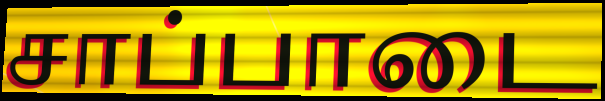
சாப்பாடை